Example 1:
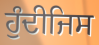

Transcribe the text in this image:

ਹੁੰਦੀਜਿਸ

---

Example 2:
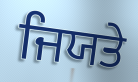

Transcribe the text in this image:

ਜਿਯਤੇ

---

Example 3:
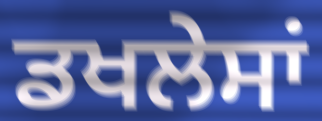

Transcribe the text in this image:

ਡਖਲੇਸਾਂ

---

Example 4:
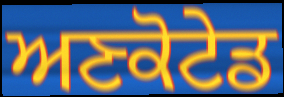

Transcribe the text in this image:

ਅਣਕੋਟੇਡ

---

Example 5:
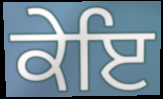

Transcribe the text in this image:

ਕੇਇ